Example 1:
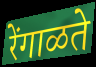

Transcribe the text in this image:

रेंगाळते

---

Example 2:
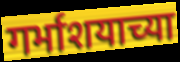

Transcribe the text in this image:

गर्भाशयाच्या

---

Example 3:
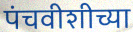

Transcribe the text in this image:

पंचवीशीच्या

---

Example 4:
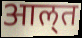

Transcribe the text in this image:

आल्त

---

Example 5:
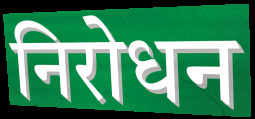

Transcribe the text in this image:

निरोधन